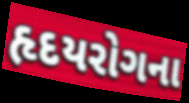
હૃદયરોગના